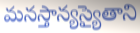
మనస్తాన్యస్యైతాని